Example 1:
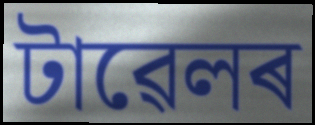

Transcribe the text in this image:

টাৱেলৰ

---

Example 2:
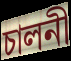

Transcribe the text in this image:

চালনী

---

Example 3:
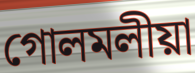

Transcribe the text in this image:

গোলমলীয়া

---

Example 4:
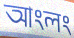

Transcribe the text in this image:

আংলং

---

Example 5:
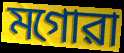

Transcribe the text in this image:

মগোৱা